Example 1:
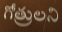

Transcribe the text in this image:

గోత్రులని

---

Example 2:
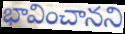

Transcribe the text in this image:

భావించానని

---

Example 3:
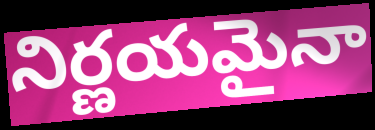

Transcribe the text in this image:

నిర్ణయమైనా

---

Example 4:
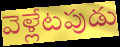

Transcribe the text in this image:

వెళ్లేటపుడు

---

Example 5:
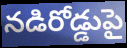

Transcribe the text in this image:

నడిరోడ్డుపై